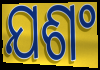
ଯଶଂ